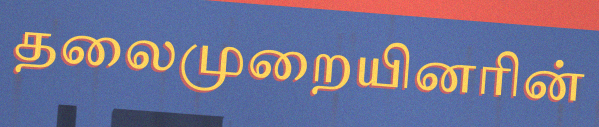
தலைமுறையினரின்